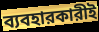
ব্যবহারকারীই